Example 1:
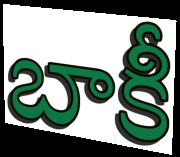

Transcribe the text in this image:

బాకీ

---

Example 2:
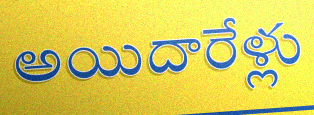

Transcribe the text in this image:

అయిదారేళ్లు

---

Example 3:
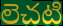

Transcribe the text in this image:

లెచటి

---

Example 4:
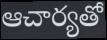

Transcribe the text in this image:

ఆచార్యతో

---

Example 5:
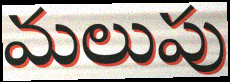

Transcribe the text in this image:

మలుపు